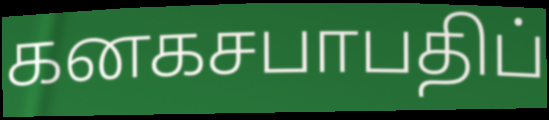
கனகசபாபதிப்